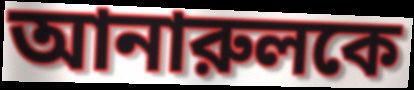
আনারুলকে